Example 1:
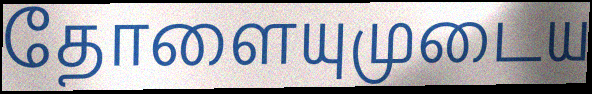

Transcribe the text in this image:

தோளையுமுடைய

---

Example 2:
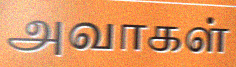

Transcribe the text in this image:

அவாகள்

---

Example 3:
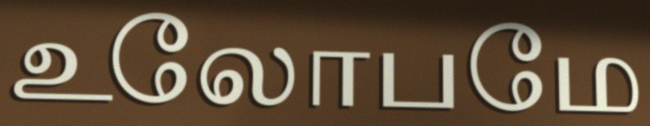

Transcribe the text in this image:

உலோபமே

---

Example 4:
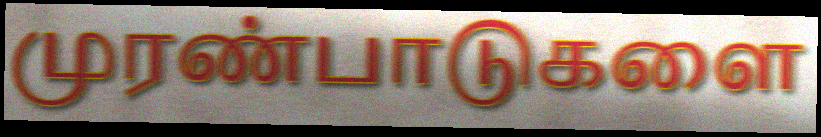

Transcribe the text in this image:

முரண்பாடுகளை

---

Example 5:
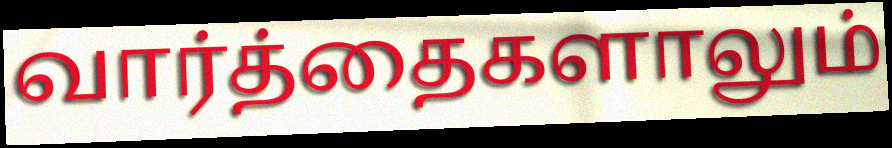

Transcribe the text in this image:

வார்த்தைகளாலும்